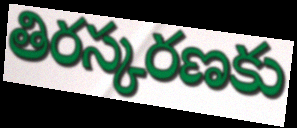
తిరస్కరణకు